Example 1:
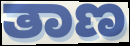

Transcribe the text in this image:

ತಾಣ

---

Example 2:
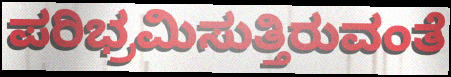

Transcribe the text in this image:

ಪರಿಭ್ರಮಿಸುತ್ತಿರುವಂತೆ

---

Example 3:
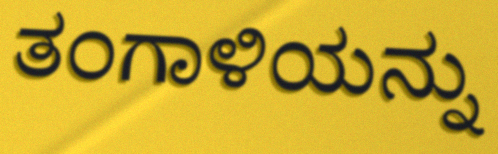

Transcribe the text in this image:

ತಂಗಾಳಿಯನ್ನು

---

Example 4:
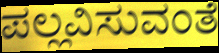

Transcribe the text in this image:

ಪಲ್ಲವಿಸುವಂತೆ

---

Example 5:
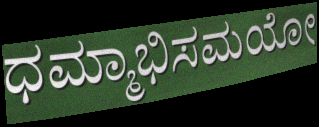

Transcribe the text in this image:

ಧಮ್ಮಾಭಿಸಮಯೋ